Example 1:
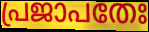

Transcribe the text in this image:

പ്രജാപതേഃ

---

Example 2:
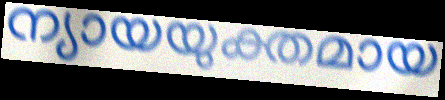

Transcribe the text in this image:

ന്യായയുക്തമായ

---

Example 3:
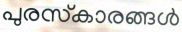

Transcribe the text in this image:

പുരസ്‌കാരങ്ങൾ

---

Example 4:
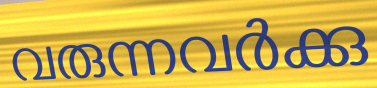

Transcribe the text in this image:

വരുന്നവർക്കു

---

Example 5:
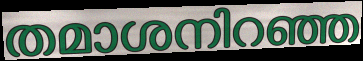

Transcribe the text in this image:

തമാശനിറഞ്ഞ